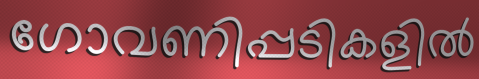
ഗോവണിപ്പടികളിൽ